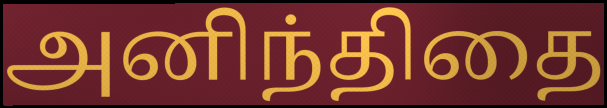
அனிந்திதை